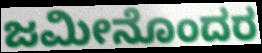
ಜಮೀನೊಂದರ